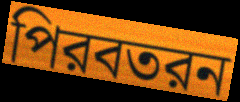
পিরবতরন